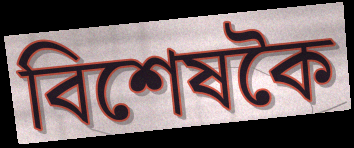
বিশেষকৈ